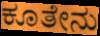
ಕೂತೇನು